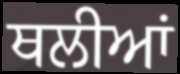
ਥਲੀਆਂ